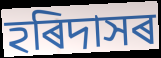
হৰিদাসৰ